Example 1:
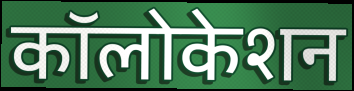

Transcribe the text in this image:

कॉलोकेशन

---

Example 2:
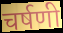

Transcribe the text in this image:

चर्षणी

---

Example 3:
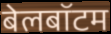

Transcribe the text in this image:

बेलबॉटम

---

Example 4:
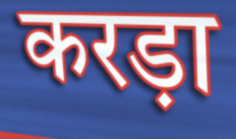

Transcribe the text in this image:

करड़ा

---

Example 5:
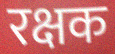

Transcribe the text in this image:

रक्षक